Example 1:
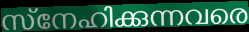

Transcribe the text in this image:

സ്‌നേഹിക്കുന്നവരെ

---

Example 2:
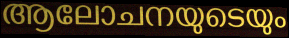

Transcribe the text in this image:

ആലോചനയുടെയും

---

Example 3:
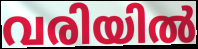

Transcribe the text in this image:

വരിയിൽ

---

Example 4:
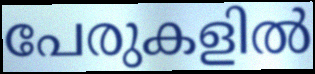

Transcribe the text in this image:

പേരുകളിൽ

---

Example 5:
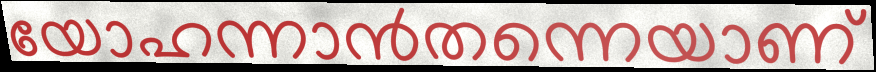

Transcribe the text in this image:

യോഹന്നാൻതന്നെയാണ്